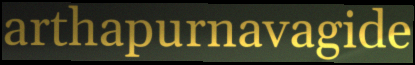
arthapurnavagide